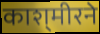
काश्मीरने